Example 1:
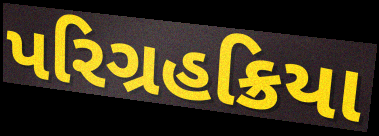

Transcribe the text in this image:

પરિગ્રહક્રિયા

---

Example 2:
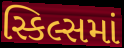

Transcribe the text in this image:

સ્કિલ્સમાં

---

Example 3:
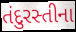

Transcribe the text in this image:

તંદુરસ્તીના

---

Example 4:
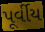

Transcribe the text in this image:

પૂર્વીય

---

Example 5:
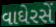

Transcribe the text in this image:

વાઘેરસેં